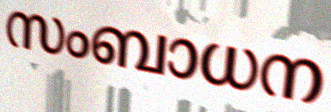
സംബാധന